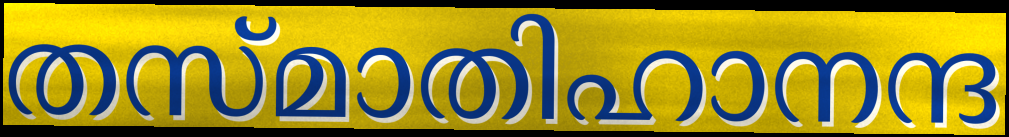
തസ്മാതിഹാനന്ദ